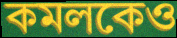
কমলকেও